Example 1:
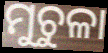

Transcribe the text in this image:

ମୁଚୁଳା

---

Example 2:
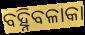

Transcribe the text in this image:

ବହ୍ନିବଳାକା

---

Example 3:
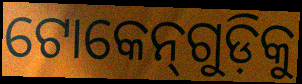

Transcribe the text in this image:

ଟୋକେନ୍‌ଗୁଡ଼ିକୁ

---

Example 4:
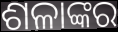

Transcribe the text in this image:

ଶଳାଙ୍କର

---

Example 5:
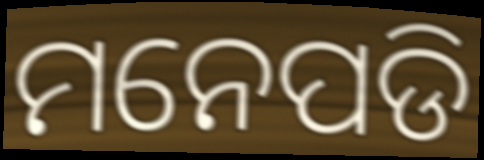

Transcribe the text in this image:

ମନେପଡି